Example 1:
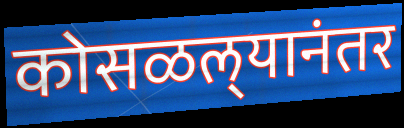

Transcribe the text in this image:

कोसळल्यानंतर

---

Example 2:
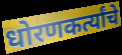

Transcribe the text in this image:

धोरणकर्त्यांचे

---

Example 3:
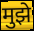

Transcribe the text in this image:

मुझे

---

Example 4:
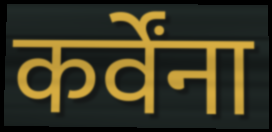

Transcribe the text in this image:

कर्वेंना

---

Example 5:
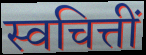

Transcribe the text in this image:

स्वचित्तीं